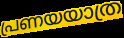
പ്രണയയാത്ര